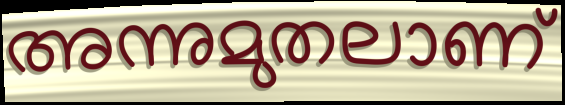
അന്നുമുതലാണ്